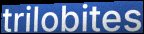
trilobites